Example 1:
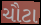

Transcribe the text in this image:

ચૌટા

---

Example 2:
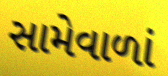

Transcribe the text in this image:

સામેવાળાં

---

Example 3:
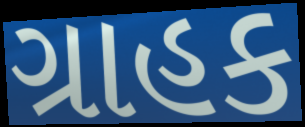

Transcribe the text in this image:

ગ્રાહક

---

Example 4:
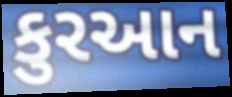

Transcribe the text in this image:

કુરઆન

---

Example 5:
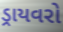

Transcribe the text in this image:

ડ્રાયવરો